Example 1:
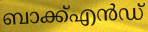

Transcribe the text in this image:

ബാക്ക്എൻഡ്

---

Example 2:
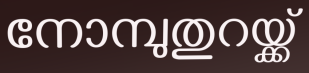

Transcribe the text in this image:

നോമ്പുതുറയ്ക്ക്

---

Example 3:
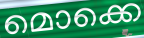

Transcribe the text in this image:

മൊക്കെ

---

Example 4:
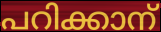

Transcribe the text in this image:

പറിക്കാന്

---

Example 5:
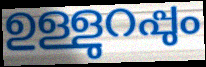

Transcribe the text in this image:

ഉള്ളുറപ്പും